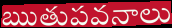
ఋతుపవనాలు